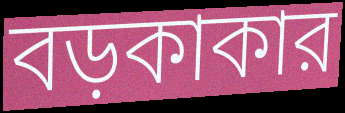
বড়কাকার